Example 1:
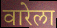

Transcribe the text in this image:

वारेला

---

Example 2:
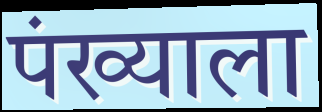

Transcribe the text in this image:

पंख्याला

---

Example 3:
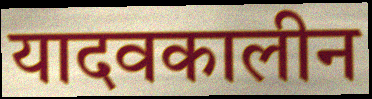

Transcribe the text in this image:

यादवकालीन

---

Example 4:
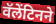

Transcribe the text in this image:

वॅलेंटिनने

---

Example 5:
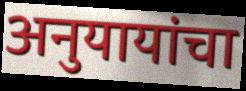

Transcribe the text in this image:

अनुयायांचा